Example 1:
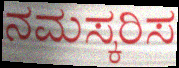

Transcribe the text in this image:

ನಮಸ್ಕರಿಸ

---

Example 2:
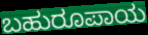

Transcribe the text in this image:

ಬಹುರೂಪಾಯ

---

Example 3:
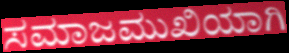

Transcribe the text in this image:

ಸಮಾಜಮುಖಿಯಾಗಿ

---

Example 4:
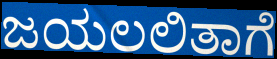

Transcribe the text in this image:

ಜಯಲಲಿತಾಗೆ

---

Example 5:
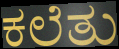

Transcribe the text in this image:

ಕಲೆತು